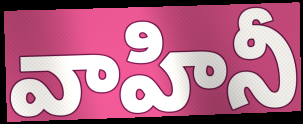
వాహినీ